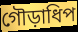
গৌড়াধিপ